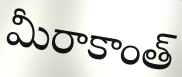
మీరాకాంత్